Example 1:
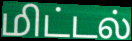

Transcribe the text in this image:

மிட்டல்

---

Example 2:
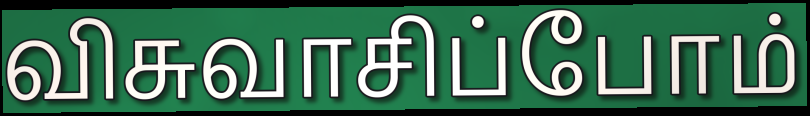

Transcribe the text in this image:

விசுவாசிப்போம்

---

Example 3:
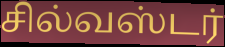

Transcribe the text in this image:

சில்வஸ்டர்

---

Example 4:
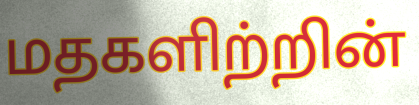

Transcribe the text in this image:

மதகளிற்றின்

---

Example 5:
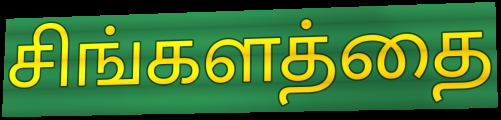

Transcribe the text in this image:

சிங்களத்தை